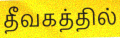
தீவகத்தில்